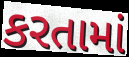
કરતામાં